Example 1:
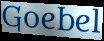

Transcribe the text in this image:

Goebel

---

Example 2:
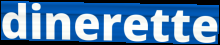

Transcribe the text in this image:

dinerette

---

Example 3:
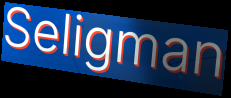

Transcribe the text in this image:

Seligman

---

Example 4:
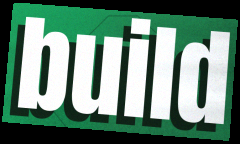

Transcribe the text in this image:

build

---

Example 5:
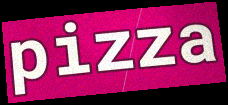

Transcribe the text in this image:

pizza